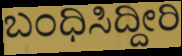
ಬಂಧಿಸಿದ್ದೀರಿ